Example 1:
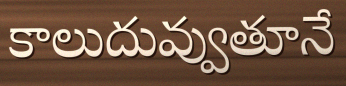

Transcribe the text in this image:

కాలుదువ్వుతూనే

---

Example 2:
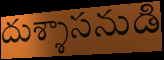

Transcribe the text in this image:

దుశ్శాసనుడి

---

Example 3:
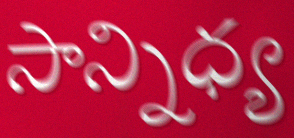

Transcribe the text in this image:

సాన్నిధ్య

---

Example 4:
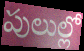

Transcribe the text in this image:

పులుల్లో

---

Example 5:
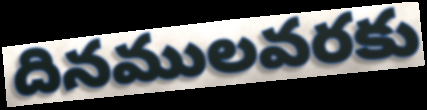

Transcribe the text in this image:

దినములవరకు